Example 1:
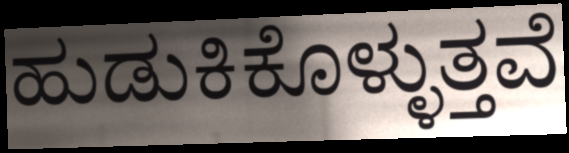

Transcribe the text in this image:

ಹುಡುಕಿಕೊಳ್ಳುತ್ತವೆ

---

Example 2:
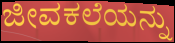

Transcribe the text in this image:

ಜೀವಕಲೆಯನ್ನು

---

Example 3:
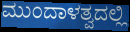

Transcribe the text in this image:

ಮುಂದಾಳತ್ವದಲ್ಲಿ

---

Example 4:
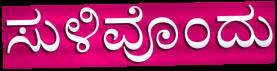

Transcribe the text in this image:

ಸುಳಿವೊಂದು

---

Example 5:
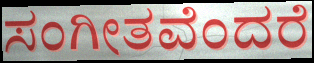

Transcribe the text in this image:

ಸಂಗೀತವೆಂದರೆ